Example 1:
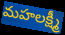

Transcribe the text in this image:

మహలక్ష్మీ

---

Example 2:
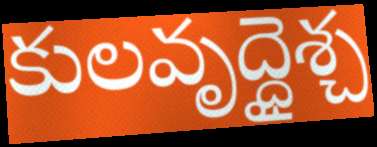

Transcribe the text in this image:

కులవృద్ధైశ్చ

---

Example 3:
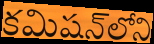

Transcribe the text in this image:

కమిషన్‌లోని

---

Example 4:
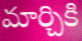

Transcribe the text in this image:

మార్చికి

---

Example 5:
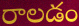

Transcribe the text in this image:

రాలడం